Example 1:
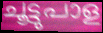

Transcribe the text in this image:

ചൂട്ടുപാള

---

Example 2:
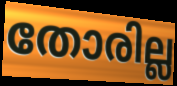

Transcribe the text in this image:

തോരില്ല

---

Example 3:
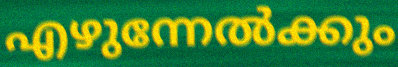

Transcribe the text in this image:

എഴുന്നേൽക്കും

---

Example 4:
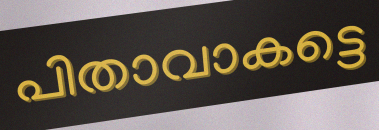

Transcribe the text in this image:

പിതാവാകട്ടെ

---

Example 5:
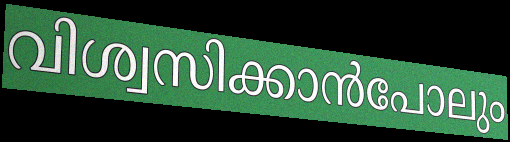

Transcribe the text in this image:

വിശ്വസിക്കാൻപോലും